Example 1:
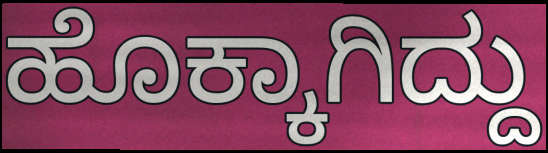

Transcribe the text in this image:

ಹೊಕ್ಕಾಗಿದ್ದು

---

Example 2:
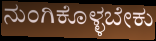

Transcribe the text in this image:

ನುಂಗಿಕೊಳ್ಳಬೇಕು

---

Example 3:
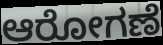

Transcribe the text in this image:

ಆರೋಗಣೆ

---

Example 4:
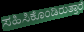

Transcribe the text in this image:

ಸಹಿಸಿಕೊಂಡಿರುತ್ತಾರೆ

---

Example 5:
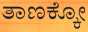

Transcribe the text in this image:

ತಾಣಕ್ಕೋ